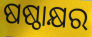
ଷଷ୍ଠାକ୍ଷର